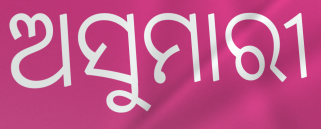
ଅସୁମାରୀ